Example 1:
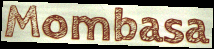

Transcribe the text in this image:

Mombasa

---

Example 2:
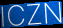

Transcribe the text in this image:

ICZN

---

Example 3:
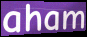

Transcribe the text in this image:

aham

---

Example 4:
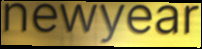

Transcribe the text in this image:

newyear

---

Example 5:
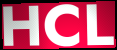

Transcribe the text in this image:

HCL